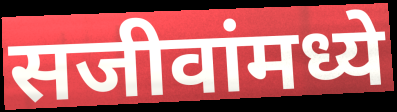
सजीवांमध्ये